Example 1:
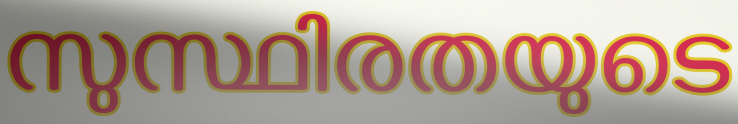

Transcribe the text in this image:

സുസ്ഥിരതയുടെ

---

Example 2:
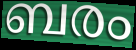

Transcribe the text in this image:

ബരം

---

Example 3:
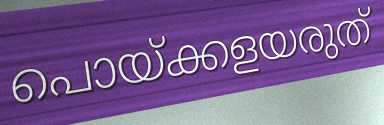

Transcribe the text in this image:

പൊയ്ക്കളയരുത്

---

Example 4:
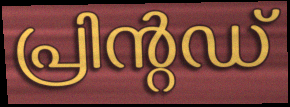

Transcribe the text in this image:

പ്രിന്റഡ്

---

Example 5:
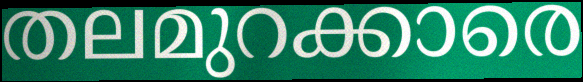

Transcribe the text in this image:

തലമുറക്കാരെ